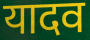
यादव